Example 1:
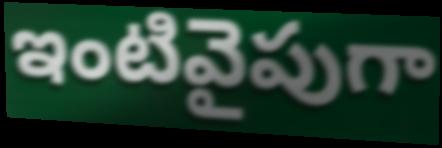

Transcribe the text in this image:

ఇంటివైపుగా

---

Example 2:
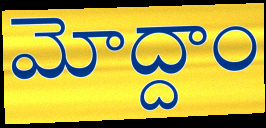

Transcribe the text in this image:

మోద్దాం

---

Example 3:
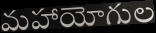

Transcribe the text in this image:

మహాయోగుల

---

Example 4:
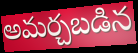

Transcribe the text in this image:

అమర్చబడిన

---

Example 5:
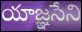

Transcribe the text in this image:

యాజ్ఞసేని